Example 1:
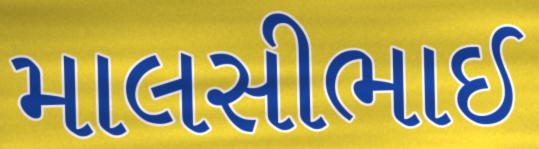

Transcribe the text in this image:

માલસીભાઈ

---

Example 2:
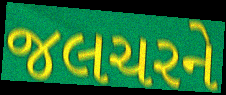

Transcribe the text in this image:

જલચરને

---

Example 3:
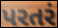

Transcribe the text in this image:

પરતરં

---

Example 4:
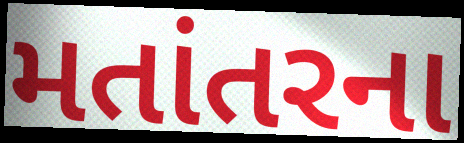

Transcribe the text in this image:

મતાંતરના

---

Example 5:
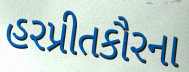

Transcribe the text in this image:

હરપ્રીતકૌરના